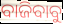
ବାଜିବାବୁ